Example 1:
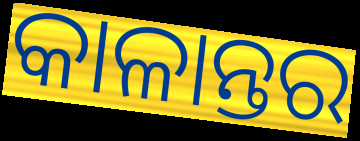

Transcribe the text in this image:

କାଳାନ୍ତର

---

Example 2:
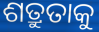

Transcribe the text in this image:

ଶତ୍ରୁତାକୁ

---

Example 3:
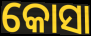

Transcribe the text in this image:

କୋସା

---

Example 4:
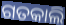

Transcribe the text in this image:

ଗତକାଲି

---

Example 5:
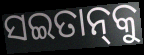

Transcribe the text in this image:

ସଇତାନ୍‌କୁ